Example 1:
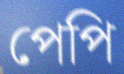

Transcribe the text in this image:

পেপি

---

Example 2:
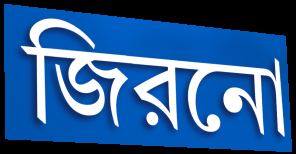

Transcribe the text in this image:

জিরনো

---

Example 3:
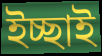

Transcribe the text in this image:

ইচ্ছাই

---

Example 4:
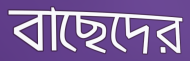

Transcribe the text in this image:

বাছেদের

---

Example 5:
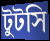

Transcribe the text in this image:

টুটসি